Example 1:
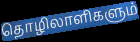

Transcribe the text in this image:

தொழிலாளிகளும்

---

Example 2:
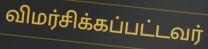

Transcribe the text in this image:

விமர்சிக்கப்பட்டவர்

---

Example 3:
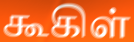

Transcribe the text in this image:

கூகிள்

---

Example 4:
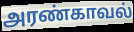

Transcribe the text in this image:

அரண்காவல்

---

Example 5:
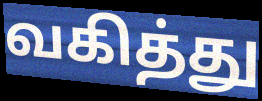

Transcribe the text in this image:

வகித்து